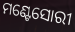
ମଣ୍ଟେସୋରୀ